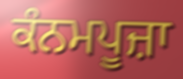
ਕੰਨਮਪੂਜ਼ਾ